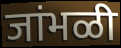
जांभळी